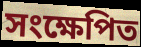
সংক্ষেপিত